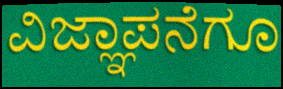
ವಿಜ್ಞಾಪನೆಗೂ